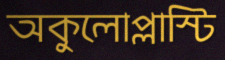
অকুলোপ্লাস্টি